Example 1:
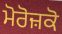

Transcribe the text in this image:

ਮੋਰੋਜ਼ਕੋ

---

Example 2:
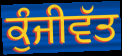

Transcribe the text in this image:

ਕੁੰਜੀਵੱਤ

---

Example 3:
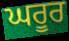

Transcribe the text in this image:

ਘਰੂਰ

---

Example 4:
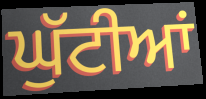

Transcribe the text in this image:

ਘੁੱਟੀਆਂ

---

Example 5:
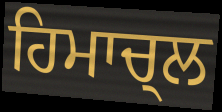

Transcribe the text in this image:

ਹਿਮਾਚ੍ਲ